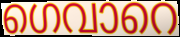
ഗെവാറെ